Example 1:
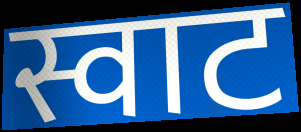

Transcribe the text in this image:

स्वाट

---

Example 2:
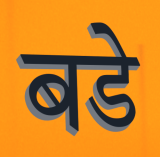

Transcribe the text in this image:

बडे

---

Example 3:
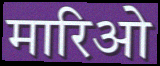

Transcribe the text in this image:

मारिओ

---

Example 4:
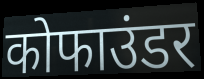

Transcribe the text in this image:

कोफाउंडर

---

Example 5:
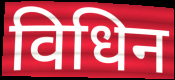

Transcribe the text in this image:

विधिन